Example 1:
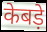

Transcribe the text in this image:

केबड़े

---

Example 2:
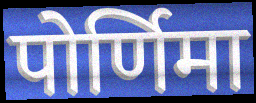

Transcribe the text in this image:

पोर्णिमा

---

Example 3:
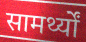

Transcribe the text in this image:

सामर्थ्यों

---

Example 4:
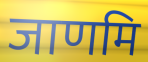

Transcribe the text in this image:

जाणमि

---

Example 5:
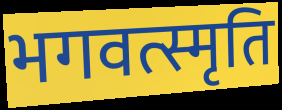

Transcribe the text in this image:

भगवत्स्मृति